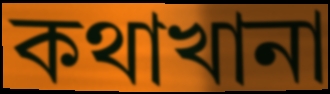
কথাখানা